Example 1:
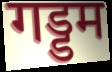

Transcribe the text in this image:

गड्डम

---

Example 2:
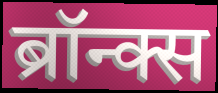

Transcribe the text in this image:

ब्रॉन्क्स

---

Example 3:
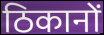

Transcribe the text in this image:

ठिकानों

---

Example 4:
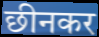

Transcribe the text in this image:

छीनकर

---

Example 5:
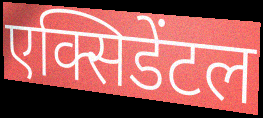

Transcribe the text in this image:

एक्सिडेंटल